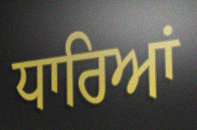
ਧਾਰਿਆਂ